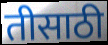
तीसाठी